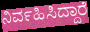
ನಿರ್ವಹಿಸಿದ್ದಾರೆ